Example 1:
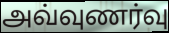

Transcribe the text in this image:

அவ்வுணர்வு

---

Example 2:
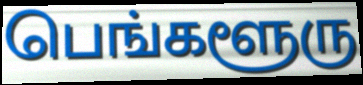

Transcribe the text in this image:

பெங்களூரு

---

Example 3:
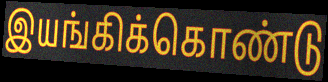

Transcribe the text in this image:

இயங்கிக்கொண்டு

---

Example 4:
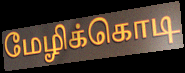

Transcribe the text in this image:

மேழிக்கொடி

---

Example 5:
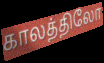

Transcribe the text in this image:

காலத்திலோ